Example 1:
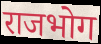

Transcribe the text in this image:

राजभोग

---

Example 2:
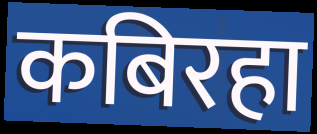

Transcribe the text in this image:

कबिरहा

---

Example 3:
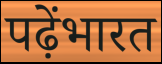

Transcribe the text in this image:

पढ़ेंभारत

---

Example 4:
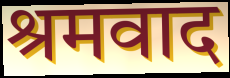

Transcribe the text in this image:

श्रमवाद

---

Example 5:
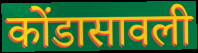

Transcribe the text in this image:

कोंडासावली